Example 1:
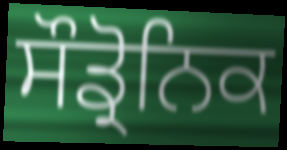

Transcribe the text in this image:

ਸੌਡ੍ਰੋਨਿਕ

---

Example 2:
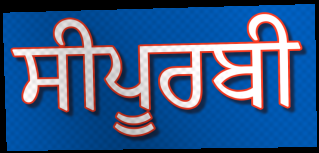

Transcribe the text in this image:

ਸੀਪੂਰਬੀ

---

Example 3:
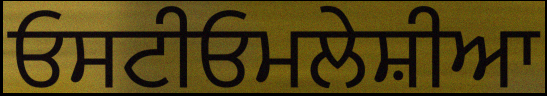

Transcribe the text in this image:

ਓਸਟੀਓਮਲੇਸ਼ੀਆ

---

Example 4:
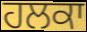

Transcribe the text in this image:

ਹਲਕਾ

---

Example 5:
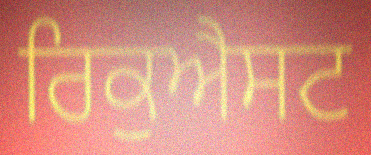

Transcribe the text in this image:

ਰਿਕੁਐਸਟ